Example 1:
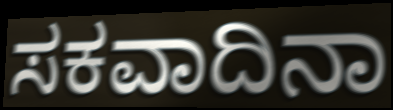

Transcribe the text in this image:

ಸಕವಾದಿನಾ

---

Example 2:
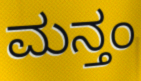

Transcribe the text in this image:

ಮನ್ತಂ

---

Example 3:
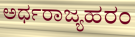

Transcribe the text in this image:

ಅರ್ಧರಾಜ್ಯಹರಂ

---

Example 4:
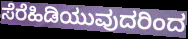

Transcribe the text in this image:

ಸೆರೆಹಿಡಿಯುವುದರಿಂದ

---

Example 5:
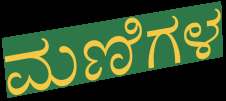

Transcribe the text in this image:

ಮಣಿಗಳ